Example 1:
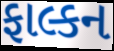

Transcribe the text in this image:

ફાલ્કન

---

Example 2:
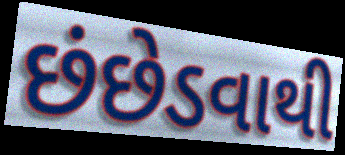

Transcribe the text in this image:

છંછેડવાથી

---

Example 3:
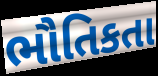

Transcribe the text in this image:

ભૌતિકતા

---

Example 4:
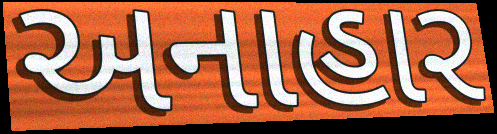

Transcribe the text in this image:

અનાહાર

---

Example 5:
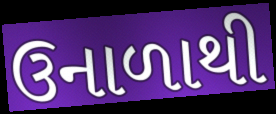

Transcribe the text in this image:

ઉનાળાથી